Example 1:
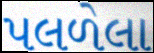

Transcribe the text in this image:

પલળેલા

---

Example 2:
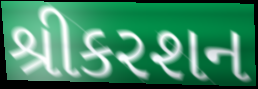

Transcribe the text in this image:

શ્રીકરશન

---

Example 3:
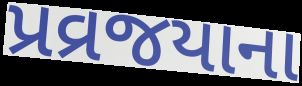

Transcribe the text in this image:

પ્રવ્રજયાના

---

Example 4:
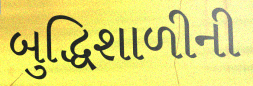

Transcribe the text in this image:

બુદ્ધિશાળીની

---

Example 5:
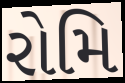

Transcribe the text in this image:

રોમિ